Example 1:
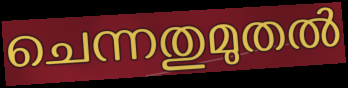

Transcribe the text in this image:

ചെന്നതുമുതൽ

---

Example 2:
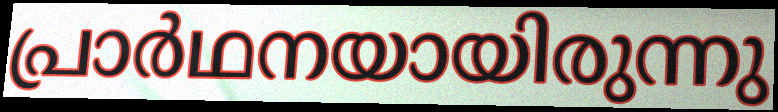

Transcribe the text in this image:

പ്രാർഥനയായിരുന്നു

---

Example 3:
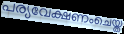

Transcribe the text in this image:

പര്യവേക്ഷണംചെയ്ത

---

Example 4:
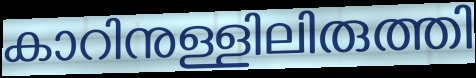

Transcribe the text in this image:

കാറിനുള്ളിലിരുത്തി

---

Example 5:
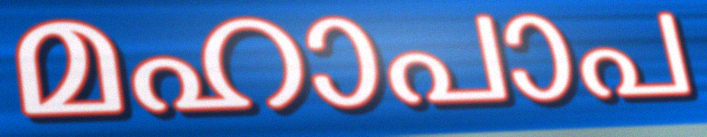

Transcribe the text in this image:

മഹാപാപ